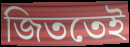
জিততেই